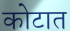
कोटात